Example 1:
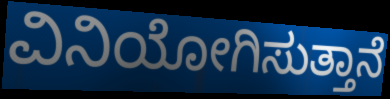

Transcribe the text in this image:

ವಿನಿಯೋಗಿಸುತ್ತಾನೆ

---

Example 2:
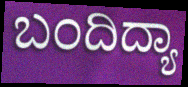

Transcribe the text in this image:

ಬಂದಿದ್ಯಾ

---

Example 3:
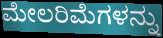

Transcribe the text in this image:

ಮೇಲರಿಮೆಗಳನ್ನು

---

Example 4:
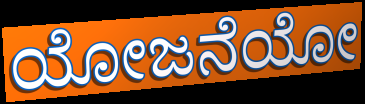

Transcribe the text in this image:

ಯೋಜನೆಯೋ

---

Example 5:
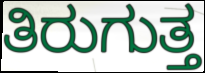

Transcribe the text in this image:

ತಿರುಗುತ್ತ